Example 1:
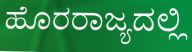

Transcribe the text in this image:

ಹೊರರಾಜ್ಯದಲ್ಲಿ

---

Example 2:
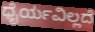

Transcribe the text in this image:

ಧೈರ್ಯವಿಲ್ಲದೆ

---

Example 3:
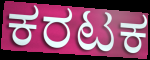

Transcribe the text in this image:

ಕರಟಕ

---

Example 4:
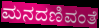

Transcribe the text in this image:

ಮನದಣಿವಂತೆ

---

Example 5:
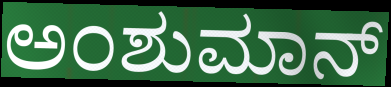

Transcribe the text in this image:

ಅಂಶುಮಾನ್